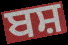
ਬਸ਼